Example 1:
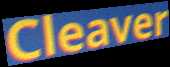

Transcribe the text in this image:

Cleaver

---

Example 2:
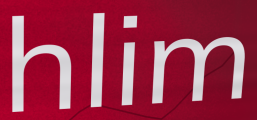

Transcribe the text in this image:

hlim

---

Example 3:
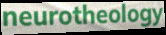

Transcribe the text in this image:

neurotheology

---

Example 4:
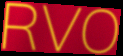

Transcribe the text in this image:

RVO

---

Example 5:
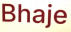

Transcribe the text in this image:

Bhaje